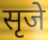
सृजे